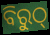
ବିରୁଠ୍